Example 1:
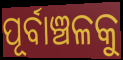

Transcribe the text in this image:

ପୂର୍ବାଞ୍ଚଳକୁ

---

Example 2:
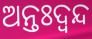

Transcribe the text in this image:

ଅନ୍ତଃଦ୍ବନ୍ଦ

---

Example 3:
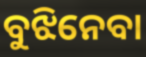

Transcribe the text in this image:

ବୁଝିନେବା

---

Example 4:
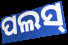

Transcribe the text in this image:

ପଲସ୍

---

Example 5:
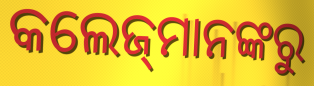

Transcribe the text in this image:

କଲେଜ୍‌ମାନଙ୍କରୁ